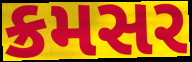
ક્રમસર